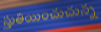
స్తుతియించుచున్న